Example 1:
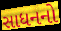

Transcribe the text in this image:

સાધનનો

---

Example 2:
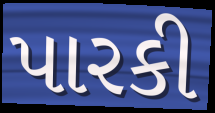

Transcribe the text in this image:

પારકી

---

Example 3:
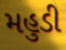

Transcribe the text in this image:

મહુડી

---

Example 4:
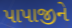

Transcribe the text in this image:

પાપાજીને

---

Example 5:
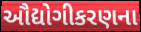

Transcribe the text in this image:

ઔદ્યોગીકરણના